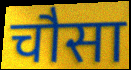
चौसा